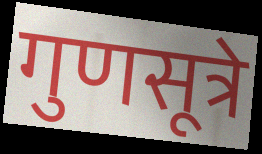
गुणसूत्रे